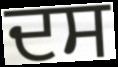
ਦਸ